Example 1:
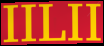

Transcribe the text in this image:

IILII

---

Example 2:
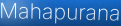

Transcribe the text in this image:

Mahapurana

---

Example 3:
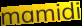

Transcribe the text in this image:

mamidi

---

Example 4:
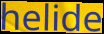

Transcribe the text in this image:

helide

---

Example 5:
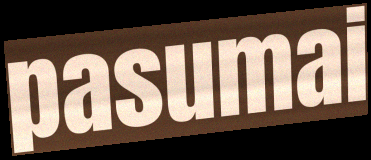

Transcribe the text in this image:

pasumai